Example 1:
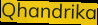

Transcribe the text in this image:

Qhandrika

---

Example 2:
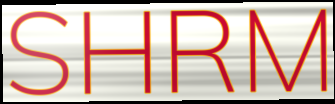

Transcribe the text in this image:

SHRM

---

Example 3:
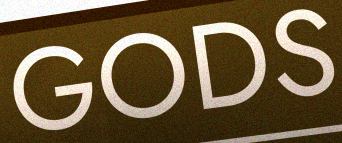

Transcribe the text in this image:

GODS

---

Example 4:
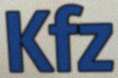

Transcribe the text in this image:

Kfz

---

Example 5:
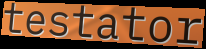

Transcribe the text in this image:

testator